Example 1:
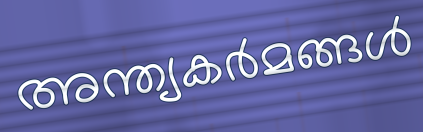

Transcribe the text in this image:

അന്ത്യകർമങ്ങൾ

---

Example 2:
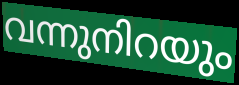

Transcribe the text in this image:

വന്നുനിറയും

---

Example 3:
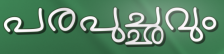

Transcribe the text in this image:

പരപുച്ഛവും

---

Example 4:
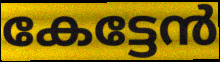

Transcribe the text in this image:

കേട്ടേൻ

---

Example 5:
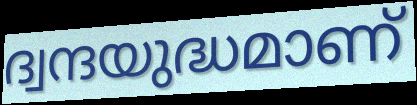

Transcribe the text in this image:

ദ്വന്ദയുദ്ധമാണ്